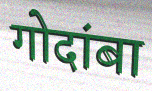
गोदांबा